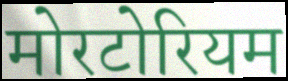
मोरटोरियम